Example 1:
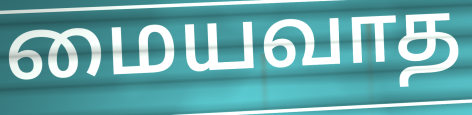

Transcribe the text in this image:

மையவாத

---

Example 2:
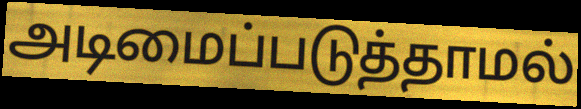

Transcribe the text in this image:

அடிமைப்படுத்தாமல்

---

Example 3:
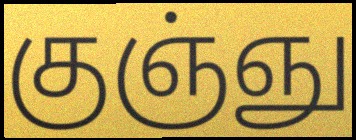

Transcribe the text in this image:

குஞ்ஞு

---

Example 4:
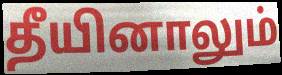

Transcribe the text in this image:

தீயினாலும்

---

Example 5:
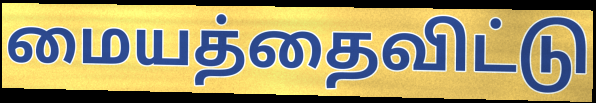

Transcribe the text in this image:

மையத்தைவிட்டு